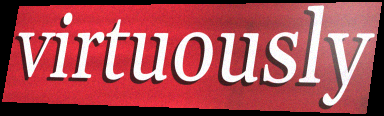
virtuously